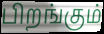
பிறங்கும்